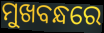
ମୁଖବନ୍ଧରେ